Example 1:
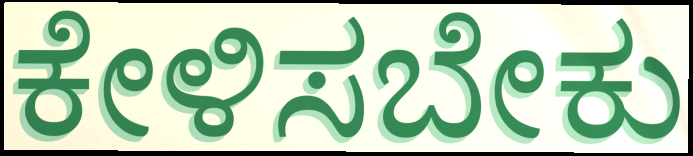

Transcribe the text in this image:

ಕೇಳಿಸಬೇಕು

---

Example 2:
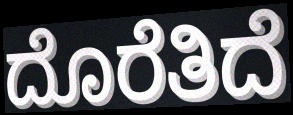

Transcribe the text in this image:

ದೊರೆತಿದೆ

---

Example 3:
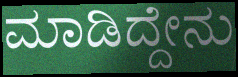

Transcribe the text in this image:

ಮಾಡಿದ್ದೇನು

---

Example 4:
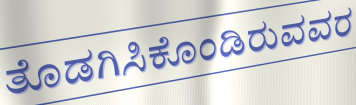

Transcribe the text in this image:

ತೊಡಗಿಸಿಕೊಂಡಿರುವವರ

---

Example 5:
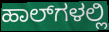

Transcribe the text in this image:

ಹಾಲ್‌ಗಳಲ್ಲಿ